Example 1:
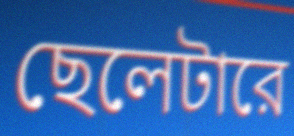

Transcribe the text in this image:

ছেলেটারে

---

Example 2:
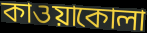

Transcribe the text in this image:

কাওয়াকোলা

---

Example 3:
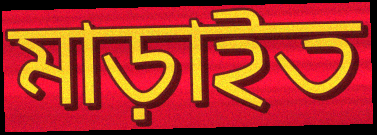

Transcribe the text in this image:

মাড়াইত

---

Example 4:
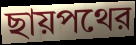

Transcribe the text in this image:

ছায়পথের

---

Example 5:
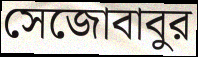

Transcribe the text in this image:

সেজোবাবুর